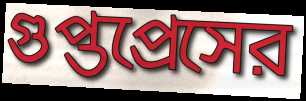
গুপ্তপ্রেসের